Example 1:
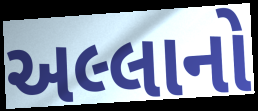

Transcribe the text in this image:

અલ્લાનો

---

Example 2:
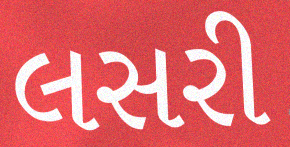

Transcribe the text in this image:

લસરી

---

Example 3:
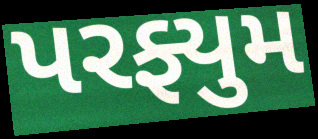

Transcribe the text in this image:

પરફ્યુમ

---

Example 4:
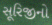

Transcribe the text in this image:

સૂરિજીનો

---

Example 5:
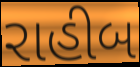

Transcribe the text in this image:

રાહીબ